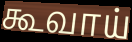
கூவாய்